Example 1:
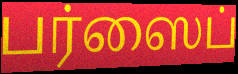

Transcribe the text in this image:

பர்ஸைப்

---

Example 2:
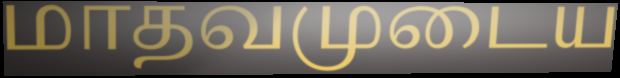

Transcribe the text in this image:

மாதவமுடைய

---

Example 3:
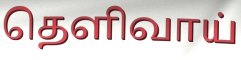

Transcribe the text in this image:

தெளிவாய்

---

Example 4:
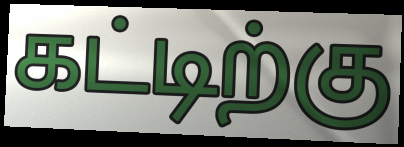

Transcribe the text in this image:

கட்டிற்கு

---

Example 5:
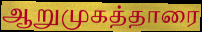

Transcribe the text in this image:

ஆறுமுகத்தாரை